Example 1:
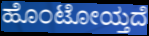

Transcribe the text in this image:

ಹೊಂಟೋಯ್ತದೆ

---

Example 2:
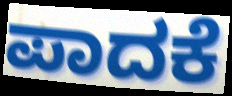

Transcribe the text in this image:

ಪಾದಕೆ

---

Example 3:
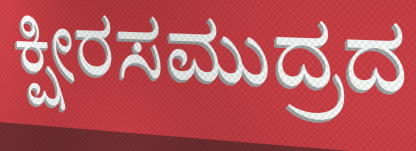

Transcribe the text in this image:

ಕ್ಷೀರಸಮುದ್ರದ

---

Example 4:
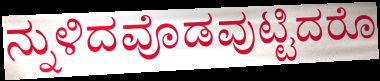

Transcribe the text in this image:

ನ್ನುಳಿದವೊಡವುಟ್ಟಿದರೊ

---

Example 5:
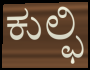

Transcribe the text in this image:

ಕುಲ್ಫಿ